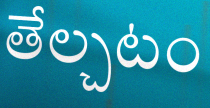
తేల్చటం